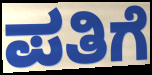
ಪತಿಗೆ